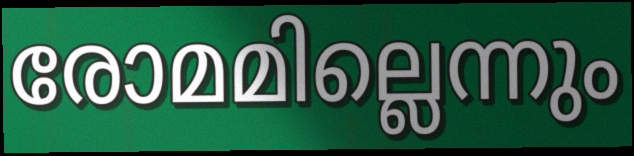
രോമമില്ലെന്നും